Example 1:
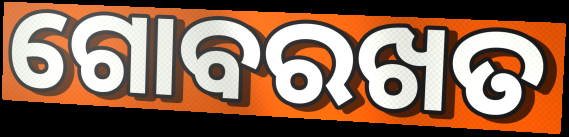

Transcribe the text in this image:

ଗୋବରଖତ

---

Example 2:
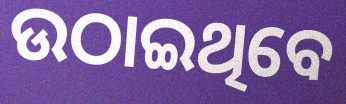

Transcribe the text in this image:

ଉଠାଇଥିବେ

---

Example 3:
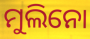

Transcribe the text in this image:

ମୁଲିନୋ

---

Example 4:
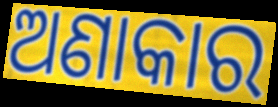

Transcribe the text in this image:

ଅଣାକାର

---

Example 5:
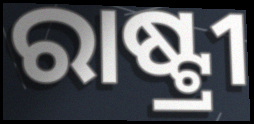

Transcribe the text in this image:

ରାଷ୍ଟ୍ରୀ